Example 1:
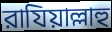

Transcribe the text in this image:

রাযিয়াল্লাহু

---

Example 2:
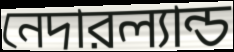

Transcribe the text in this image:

নেদারল্যান্ড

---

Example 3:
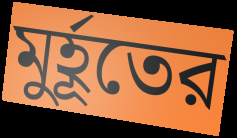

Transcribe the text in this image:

মুর্হূতের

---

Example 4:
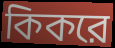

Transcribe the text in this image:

কিকরে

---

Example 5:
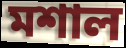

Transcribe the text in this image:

মশাল